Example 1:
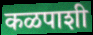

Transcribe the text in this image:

कळपाशी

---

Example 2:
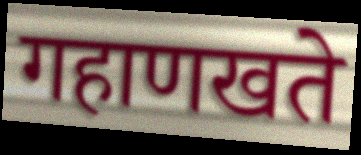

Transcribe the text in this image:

गहाणखते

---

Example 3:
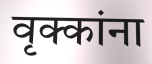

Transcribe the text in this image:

वृक्कांना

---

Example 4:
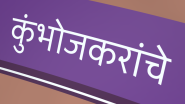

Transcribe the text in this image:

कुंभोजकरांचे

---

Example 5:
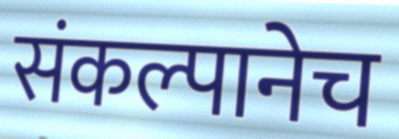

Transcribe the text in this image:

संकल्पानेच